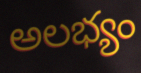
అలభ్యం